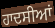
ਹਾਦਸੀਆਂ